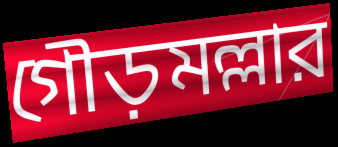
গৌড়মল্লার